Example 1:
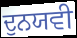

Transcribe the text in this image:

ਦੁਨਯਵੀ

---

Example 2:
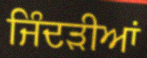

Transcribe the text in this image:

ਜਿੰਦੜੀਆਂ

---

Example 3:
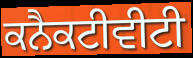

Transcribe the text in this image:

ਕਨੈਕਟੀਵੀਟੀ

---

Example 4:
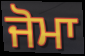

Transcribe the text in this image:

ਜੋਮਾ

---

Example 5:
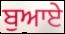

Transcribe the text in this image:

ਬੁਆਏ